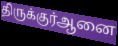
திருக்குர்ஆனை